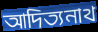
আদিত্যনাথ